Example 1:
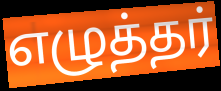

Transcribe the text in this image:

எழுத்தர்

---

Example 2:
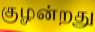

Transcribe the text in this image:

குழன்றது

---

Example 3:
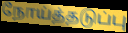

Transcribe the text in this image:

நோய்த்தடுப்பு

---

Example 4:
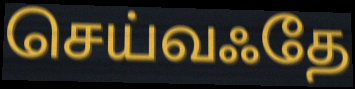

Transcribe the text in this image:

செய்வஃதே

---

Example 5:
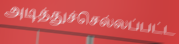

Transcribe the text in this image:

அடித்துச்செல்லப்பட்ட